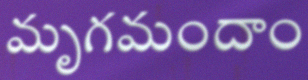
మృగమందాం